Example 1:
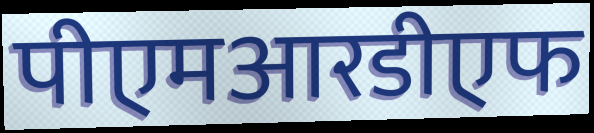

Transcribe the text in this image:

पीएमआरडीएफ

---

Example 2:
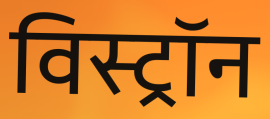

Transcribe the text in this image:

विस्ट्रॉन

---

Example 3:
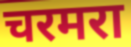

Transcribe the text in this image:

चरमरा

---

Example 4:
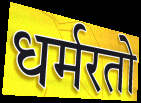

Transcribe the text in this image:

धर्मरतो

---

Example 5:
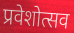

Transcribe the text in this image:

प्रवेशोत्सव